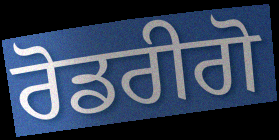
ਰੋਡਰੀਗੋ